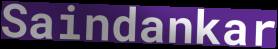
Saindankar